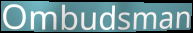
Ombudsman